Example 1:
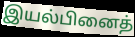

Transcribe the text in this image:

இயல்பினைத்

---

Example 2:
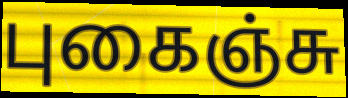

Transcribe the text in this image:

புகைஞ்சு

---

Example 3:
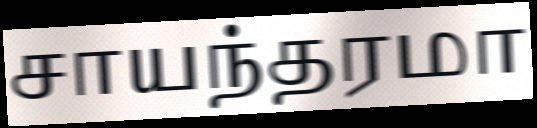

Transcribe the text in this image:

சாயந்தரமா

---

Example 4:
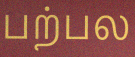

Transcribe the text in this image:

பற்பல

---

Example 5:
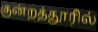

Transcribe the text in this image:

குன்றத்தூரில்